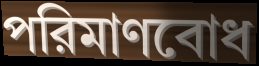
পরিমাণবোধ